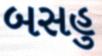
બસહુ